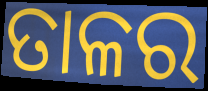
ତାଳର